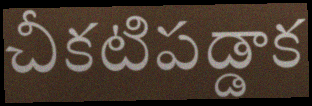
చీకటిపడ్డాక